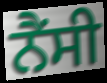
ਨੈਂਸੀ